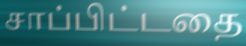
சாப்பிட்டதை